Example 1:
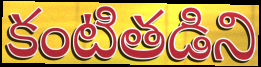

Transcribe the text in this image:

కంటితడిని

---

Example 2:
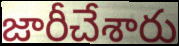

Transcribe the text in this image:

జారీచేశారు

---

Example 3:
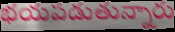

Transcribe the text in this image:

భయపడుతున్నారు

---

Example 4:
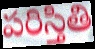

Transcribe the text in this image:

పరిస్తితి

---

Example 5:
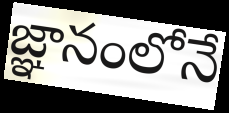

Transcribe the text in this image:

జ్ఞానంలోనే